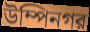
উম্পিনগর